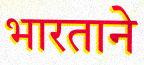
भारताने